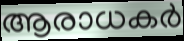
ആരാധകർ